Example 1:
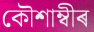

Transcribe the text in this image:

কৌশাম্বীৰ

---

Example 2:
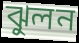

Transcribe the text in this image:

ঝুলন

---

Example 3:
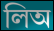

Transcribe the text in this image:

লিঅ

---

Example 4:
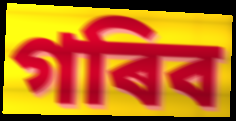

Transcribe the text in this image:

গৰিব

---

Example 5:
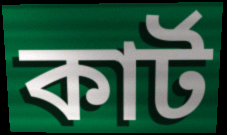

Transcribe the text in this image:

কাৰ্ট